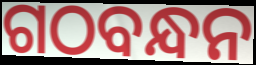
ଗଠବନ୍ଧନ